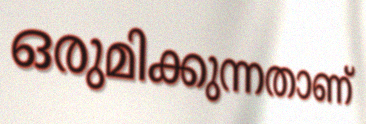
ഒരുമിക്കുന്നതാണ്